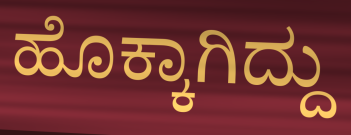
ಹೊಕ್ಕಾಗಿದ್ದು